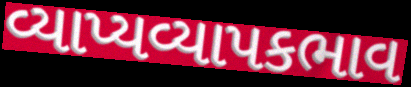
વ્યાપ્યવ્યાપકભાવ